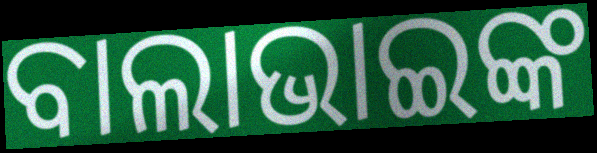
ବାଲାଭାଇଙ୍କ